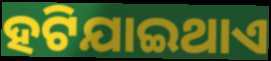
ହଟିଯାଇଥାଏ